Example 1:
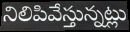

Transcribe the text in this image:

నిలిపివేస్తున్నట్లు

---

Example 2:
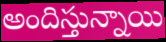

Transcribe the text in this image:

అందిస్తున్నాయి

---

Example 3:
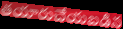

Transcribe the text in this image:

తయారుచేయబడిన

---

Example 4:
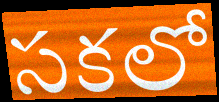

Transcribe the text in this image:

సకలో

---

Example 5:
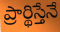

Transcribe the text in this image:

ప్రార్థిస్తేనే